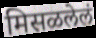
मिसळलेलं